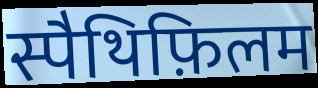
स्पैथिफ़िलम